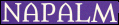
NAPALM